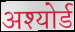
अश्योर्ड